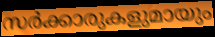
സർക്കാരുകളുമായും